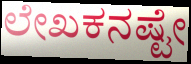
ಲೇಖಕನಷ್ಟೇ